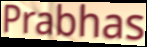
Prabhas